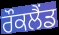
ਰੌਕਲੈਂਡ